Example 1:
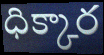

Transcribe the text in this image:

ధిక్కార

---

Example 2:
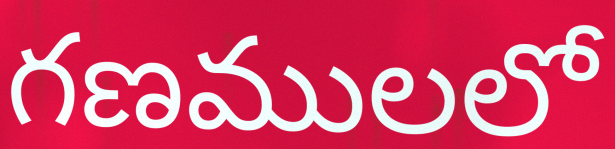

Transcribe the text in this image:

గణములలో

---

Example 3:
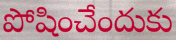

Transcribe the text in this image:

పోషించేందుకు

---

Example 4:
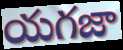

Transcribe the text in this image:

యగజా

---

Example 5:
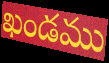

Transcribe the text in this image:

ఖండము